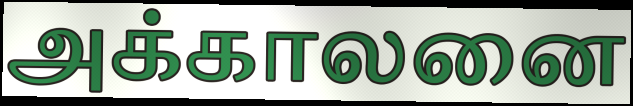
அக்காலனை